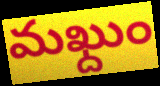
మఖ్దుం